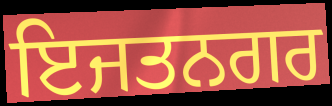
ਇਜਤਨਗਰ